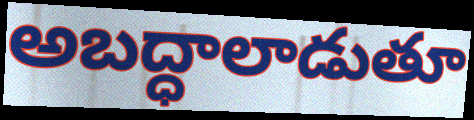
అబద్ధాలాడుతూ